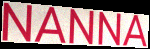
NANNA